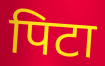
पिटा